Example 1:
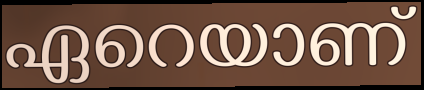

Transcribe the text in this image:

ഏറെയാണ്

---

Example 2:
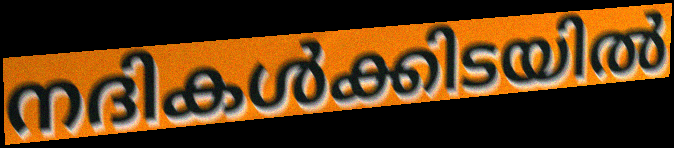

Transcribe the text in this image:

നദികൾക്കിടയിൽ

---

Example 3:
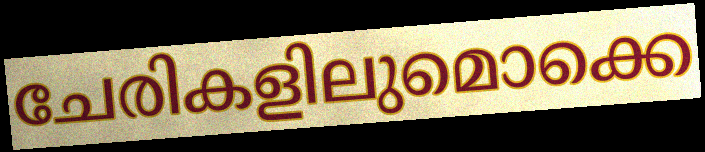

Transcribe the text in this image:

ചേരികളിലുമൊക്കെ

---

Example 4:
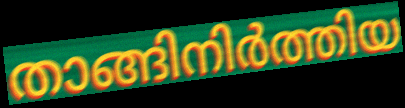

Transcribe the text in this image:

താങ്ങിനിർത്തിയ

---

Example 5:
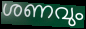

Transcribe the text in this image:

ശണവും